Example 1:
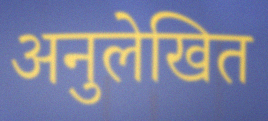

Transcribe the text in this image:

अनुलेखित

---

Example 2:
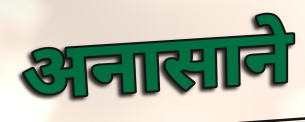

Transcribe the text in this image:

अनासाने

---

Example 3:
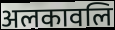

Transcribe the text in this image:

अलकावलि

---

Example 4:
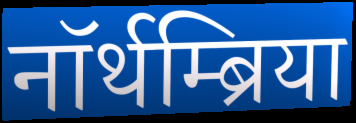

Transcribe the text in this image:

नॉर्थम्ब्रिया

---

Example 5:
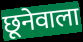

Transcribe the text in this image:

छूनेवाला